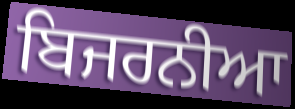
ਬਿਜਰਨੀਆ